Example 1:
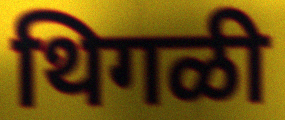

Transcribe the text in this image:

थिगळी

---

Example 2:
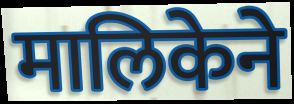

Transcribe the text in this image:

मालिकेने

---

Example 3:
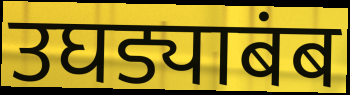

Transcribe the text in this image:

उघड्याबंब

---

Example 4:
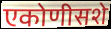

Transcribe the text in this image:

एकोणीसशे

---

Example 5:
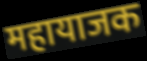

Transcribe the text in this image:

महायाजक